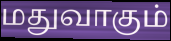
மதுவாகும்